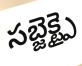
సబ్జెక్ట్పై